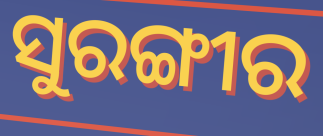
ସୁରଙ୍ଗୀର